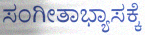
ಸಂಗೀತಾಭ್ಯಾಸಕ್ಕೆ